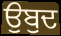
ਉਬੁਦ